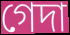
গেদা